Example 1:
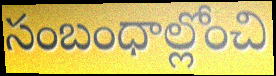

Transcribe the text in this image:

సంబంధాల్లోంచి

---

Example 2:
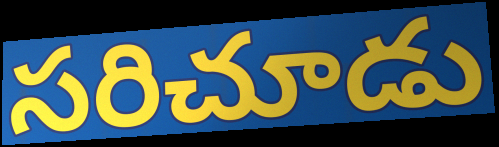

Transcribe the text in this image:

సరిచూడు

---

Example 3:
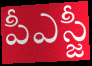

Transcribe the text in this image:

పీఎస్జీ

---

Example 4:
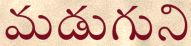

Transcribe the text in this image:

మడుగుని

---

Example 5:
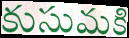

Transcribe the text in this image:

కుసుమకి